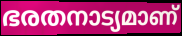
ഭരതനാട്യമാണ്